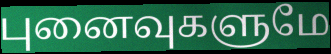
புனைவுகளுமே